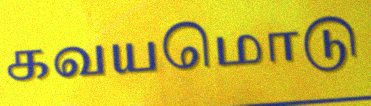
கவயமொடு